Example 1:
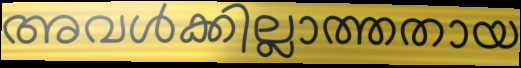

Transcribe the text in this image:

അവൾക്കില്ലാത്തതായ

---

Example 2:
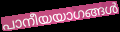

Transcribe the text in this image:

പാനീയയാഗങ്ങൾ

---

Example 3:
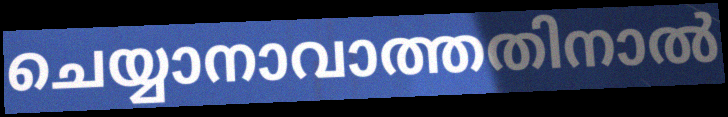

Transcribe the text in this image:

ചെയ്യാനാവാത്തതിനാൽ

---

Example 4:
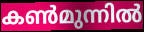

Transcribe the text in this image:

കൺമുന്നിൽ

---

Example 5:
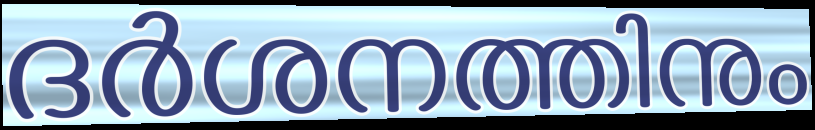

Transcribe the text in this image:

ദർശനത്തിനും